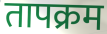
तापक्रम